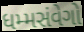
ધમ્મસંવેગો